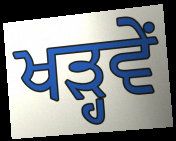
ਖੜ੍ਹਵੇਂ